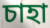
চাহা